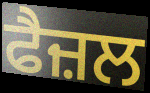
ਫੈਜ਼ਲ